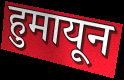
हुमायून